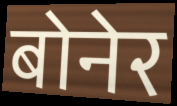
बोनेर